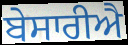
ਬੇਸਾਰੀਐ